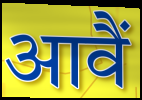
आवैं